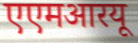
एएमआरयू